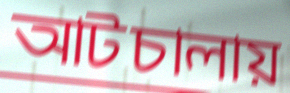
আটচালায়